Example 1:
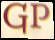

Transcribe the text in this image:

GP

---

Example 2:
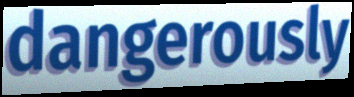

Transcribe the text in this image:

dangerously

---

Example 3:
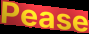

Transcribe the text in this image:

Pease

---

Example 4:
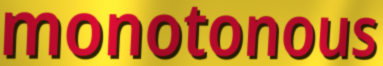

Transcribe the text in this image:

monotonous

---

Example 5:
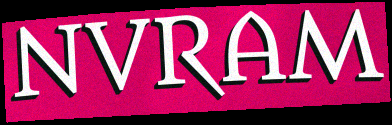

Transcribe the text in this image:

NVRAM